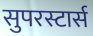
सुपरस्टार्स